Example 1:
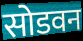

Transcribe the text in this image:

सोडवन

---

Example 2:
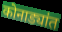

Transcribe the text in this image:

कोनाड्यांत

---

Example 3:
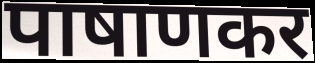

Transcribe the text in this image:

पाषाणकर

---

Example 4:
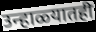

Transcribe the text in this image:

उन्हाळ्यातही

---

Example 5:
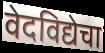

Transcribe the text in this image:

वेदविद्येचा